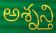
అశ్నన్తి